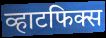
व्हाटफिक्स